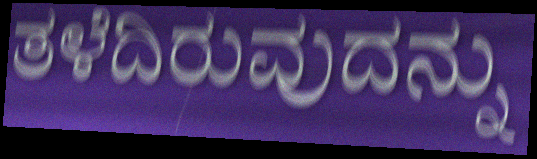
ತಳೆದಿರುವುದನ್ನು